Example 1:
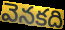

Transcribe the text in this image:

వెనకది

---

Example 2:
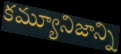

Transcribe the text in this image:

కమ్యూనిజాన్ని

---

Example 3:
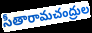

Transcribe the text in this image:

సీతారామచంద్రుల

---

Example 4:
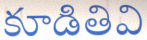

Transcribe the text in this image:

కూడితివి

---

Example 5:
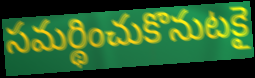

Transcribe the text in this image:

సమర్థించుకొనుటకై